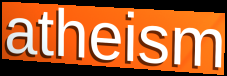
atheism